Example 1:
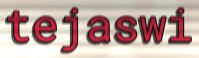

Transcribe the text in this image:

tejaswi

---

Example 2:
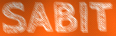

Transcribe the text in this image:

SABIT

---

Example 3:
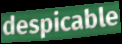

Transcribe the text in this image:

despicable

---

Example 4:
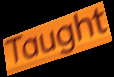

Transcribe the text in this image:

Taught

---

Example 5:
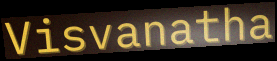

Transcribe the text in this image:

Visvanatha